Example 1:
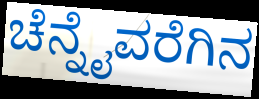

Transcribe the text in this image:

ಚೆನ್ನೈವರೆಗಿನ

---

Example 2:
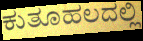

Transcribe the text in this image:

ಕುತೂಹಲದಲ್ಲಿ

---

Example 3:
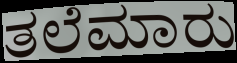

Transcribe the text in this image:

ತಲೆಮಾರು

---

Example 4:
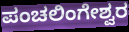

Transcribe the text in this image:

ಪಂಚಲಿಂಗೇಶ್ವರ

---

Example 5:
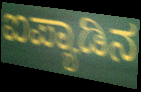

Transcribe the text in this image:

ಐಪ್ಯಾಡಿನ